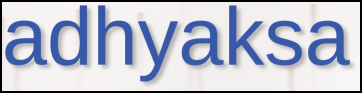
adhyaksa